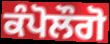
ਕੰਪੋਲੌਗੋ